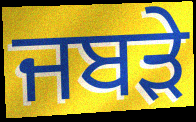
ਜਬੜੇ